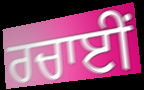
ਰਚਾਈਂ